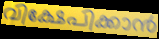
വിക്ഷേപിക്കാൻ